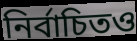
নির্বাচিতও